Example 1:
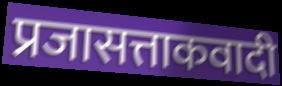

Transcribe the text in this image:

प्रजासत्ताकवादी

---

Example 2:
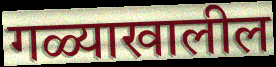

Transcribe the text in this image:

गळ्याखालील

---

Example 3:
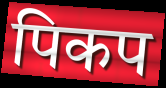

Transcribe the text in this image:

पिकप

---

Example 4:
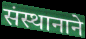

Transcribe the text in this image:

संस्थानाने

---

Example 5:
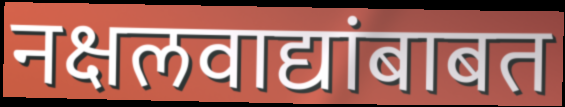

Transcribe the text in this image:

नक्षलवाद्यांबाबत